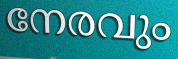
നേരവും